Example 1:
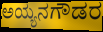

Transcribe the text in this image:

ಅಯ್ಯನಗೌಡರ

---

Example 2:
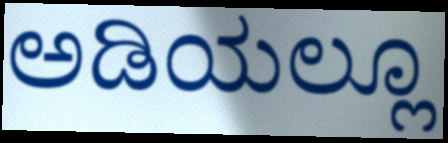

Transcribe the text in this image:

ಅಡಿಯಲ್ಲೂ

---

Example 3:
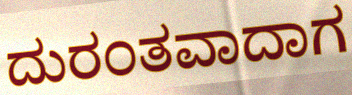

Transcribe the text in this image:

ದುರಂತವಾದಾಗ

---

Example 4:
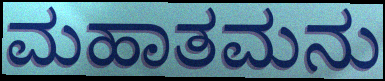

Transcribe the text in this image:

ಮಹಾತಮನು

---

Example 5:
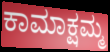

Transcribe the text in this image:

ಕಾಮಾಕ್ಷಮ್ಮ